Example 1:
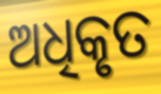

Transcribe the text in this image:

ଅଧିକୃତ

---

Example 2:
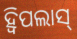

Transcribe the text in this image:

ହ୍ୱିପଲାସ୍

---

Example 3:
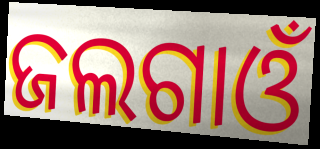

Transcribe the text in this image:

ଜଲଗାଓଁ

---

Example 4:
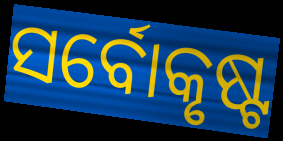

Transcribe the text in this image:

ସର୍ବୋକୃଷ୍ଟ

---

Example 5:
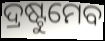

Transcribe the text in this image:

ଦ୍ରଷ୍ଟୁମେବ